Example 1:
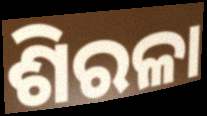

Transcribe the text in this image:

ଶିରଳା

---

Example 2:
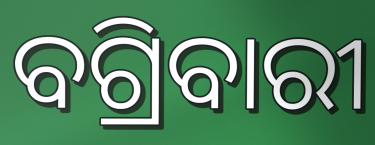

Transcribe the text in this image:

ବଗ୍ରିବାରୀ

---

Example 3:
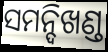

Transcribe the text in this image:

ସମନ୍ଦିଖଣ୍ଡ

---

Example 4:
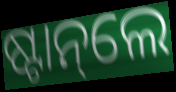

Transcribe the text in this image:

ଷ୍ଟାନ୍‌ଲେ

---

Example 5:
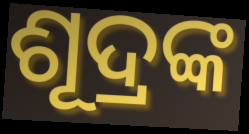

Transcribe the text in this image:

ଶୂଦ୍ରଙ୍କ